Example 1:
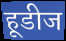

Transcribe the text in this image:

हूडीज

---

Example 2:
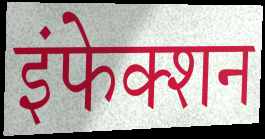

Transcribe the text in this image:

इंफेक्शन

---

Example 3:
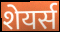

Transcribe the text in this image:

शेयर्स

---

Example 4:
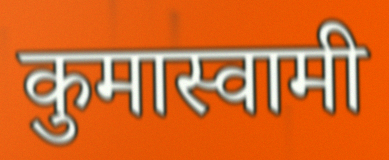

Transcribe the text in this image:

कुमास्वामी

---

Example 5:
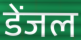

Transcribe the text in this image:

डेंजल